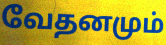
வேதனமும்